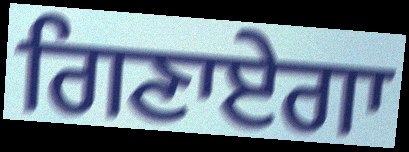
ਗਿਣਾਏਗਾ